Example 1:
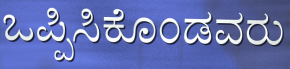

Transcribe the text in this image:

ಒಪ್ಪಿಸಿಕೊಂಡವರು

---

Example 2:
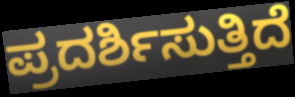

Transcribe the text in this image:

ಪ್ರದರ್ಶಿಸುತ್ತಿದೆ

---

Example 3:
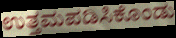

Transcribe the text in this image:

ಉತ್ತಮಪಡಿಸಿಕೊಂಡು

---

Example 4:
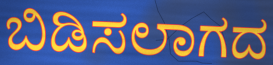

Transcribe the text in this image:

ಬಿಡಿಸಲಾಗದ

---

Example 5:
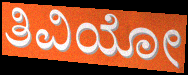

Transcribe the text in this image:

ತಿವಿಯೋ